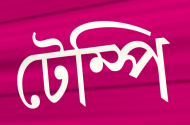
টেম্পি